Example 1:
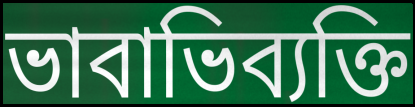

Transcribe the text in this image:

ভাবাভিব্যক্তি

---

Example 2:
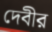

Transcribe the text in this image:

দেবীর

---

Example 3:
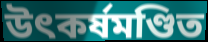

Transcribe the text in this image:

উৎকর্ষমণ্ডিত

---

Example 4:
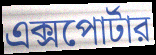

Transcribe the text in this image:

এক্সপোর্টার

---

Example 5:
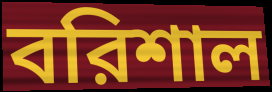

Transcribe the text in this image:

বরিশাল